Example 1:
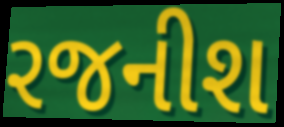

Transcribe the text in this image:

રજનીશ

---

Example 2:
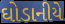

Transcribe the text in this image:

ઘોડાનીયે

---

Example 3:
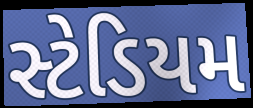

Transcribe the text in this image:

સ્ટેડિયમ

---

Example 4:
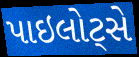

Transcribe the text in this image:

પાઇલોટ્સે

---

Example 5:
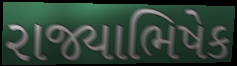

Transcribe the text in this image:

રાજ્યાભિષેક